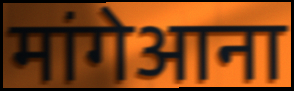
मांगेआना